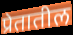
प्रेतातील